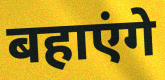
बहाएंगे